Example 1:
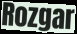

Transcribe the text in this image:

Rozgar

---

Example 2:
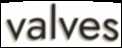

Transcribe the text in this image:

valves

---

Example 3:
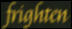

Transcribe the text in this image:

frighten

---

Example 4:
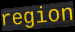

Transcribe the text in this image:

region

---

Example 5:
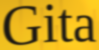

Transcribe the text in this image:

Gita